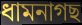
ধামনাগছ